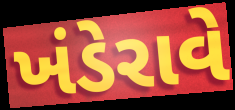
ખંડેરાવે